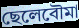
ছেলেবৌমা